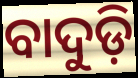
ବାଦୁଡ଼ି